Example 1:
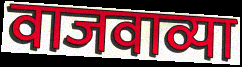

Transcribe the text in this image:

वाजवाव्या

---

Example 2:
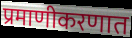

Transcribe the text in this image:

प्रमाणीकरणात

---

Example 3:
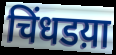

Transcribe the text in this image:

चिंधडय़ा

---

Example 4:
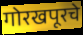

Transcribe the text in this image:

गोरखपूरचे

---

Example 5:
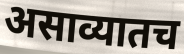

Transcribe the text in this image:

असाव्यातच